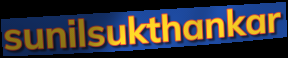
sunilsukthankar